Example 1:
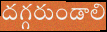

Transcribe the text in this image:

దగ్గరుండాలి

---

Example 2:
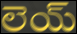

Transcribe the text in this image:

లెయ్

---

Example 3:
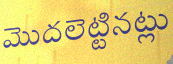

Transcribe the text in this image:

మొదలెట్టినట్లు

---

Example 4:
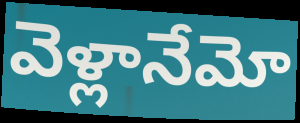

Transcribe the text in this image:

వెళ్లానేమో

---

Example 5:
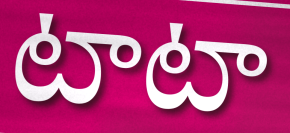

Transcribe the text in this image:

టాటా